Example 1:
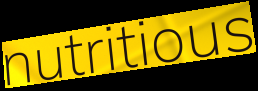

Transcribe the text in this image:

nutritious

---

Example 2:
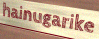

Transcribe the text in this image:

hainugarike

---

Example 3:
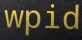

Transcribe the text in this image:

wpid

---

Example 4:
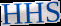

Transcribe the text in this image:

HHS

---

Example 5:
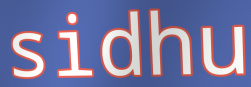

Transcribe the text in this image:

sidhu